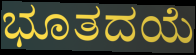
ಭೂತದಯೆ